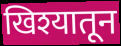
खिश्यातून